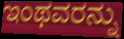
ಇಂಥವರನ್ನು